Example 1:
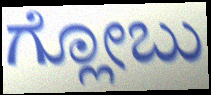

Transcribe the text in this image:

ಗ್ಲೋಬು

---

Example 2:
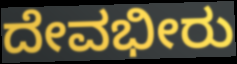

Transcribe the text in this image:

ದೇವಭೀರು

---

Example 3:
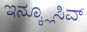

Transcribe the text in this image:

ಇನ್ಕ್ಲೂಸಿವ್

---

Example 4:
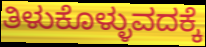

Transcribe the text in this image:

ತಿಳುಕೊಳ್ಳುವದಕ್ಕೆ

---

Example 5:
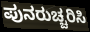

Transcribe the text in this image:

ಪುನರುಚ್ಚರಿಸಿ